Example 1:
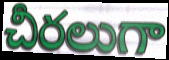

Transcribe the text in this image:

చీరలుగా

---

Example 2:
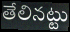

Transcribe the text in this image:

తేలినట్టు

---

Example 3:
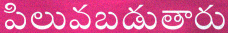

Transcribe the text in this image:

పిలువబడుతారు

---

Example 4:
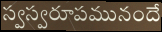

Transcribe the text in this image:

స్వస్వరూపమునందే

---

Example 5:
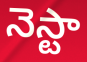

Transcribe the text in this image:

నెస్టా